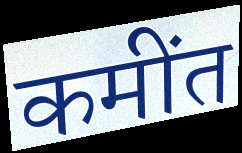
कमींत